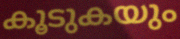
കൂടുകയും